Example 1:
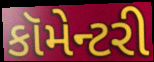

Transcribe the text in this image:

કૉમેન્ટરી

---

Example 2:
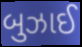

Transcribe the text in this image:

બુઝાઈ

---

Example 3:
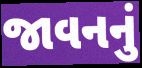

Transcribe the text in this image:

જાવનનું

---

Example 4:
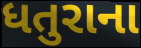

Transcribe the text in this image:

ધતુરાના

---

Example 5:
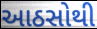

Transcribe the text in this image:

આઠસોથી